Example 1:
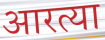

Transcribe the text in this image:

आरत्या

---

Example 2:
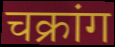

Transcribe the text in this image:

चक्रांग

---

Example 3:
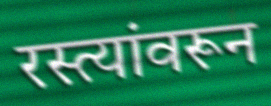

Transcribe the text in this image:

रस्त्यांवरून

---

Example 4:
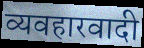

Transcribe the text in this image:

व्यवहारवादी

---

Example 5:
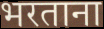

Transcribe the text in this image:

भरताना